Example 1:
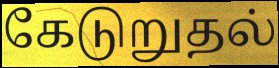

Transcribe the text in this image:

கேடுறுதல்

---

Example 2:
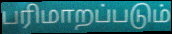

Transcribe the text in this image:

பரிமாறப்படும்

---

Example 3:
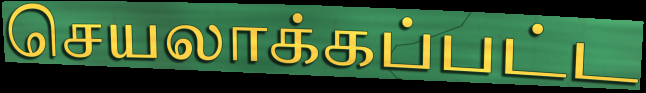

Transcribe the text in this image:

செயலாக்கப்பட்ட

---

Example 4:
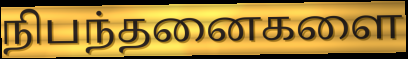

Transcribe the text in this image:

நிபந்தனைகளை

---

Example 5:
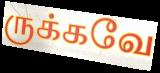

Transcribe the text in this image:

ருக்கவே